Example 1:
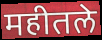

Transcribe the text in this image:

महीतले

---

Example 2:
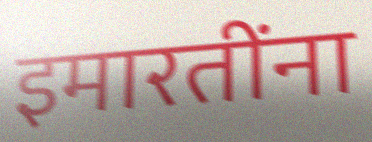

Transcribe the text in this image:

इमारतींना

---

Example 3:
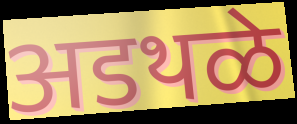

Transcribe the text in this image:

अडथळे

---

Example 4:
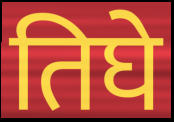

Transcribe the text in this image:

तिघे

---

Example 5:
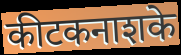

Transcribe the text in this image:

कीटकनाशके